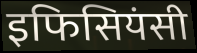
इफिसियंसी